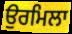
ਉਰਮਿਲਾ